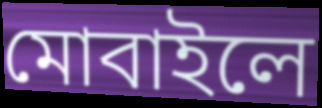
মোবাইলে